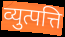
व्युत्पत्ति